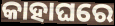
କାହାଘରେ